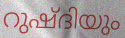
റുഷ്ദിയും